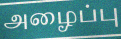
அழைப்பு